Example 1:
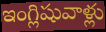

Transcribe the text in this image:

ఇంగ్లిషువాళ్లు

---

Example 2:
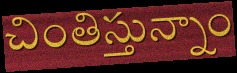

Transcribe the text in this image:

చింతిస్తున్నాం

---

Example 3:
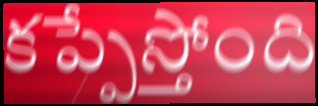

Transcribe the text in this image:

కప్పేస్తోంది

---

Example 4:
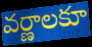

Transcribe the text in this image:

వర్ణాలకూ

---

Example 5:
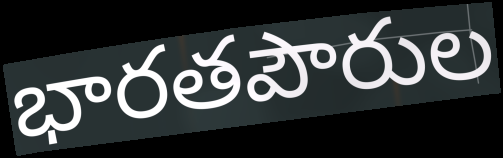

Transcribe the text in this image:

భారతపౌరుల